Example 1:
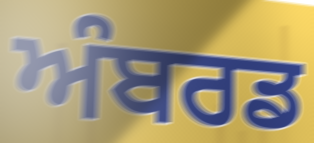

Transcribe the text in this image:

ਅੰਬਰਡ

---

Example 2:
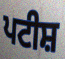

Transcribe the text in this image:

ਪਟੀਸ਼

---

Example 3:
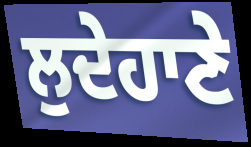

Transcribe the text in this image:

ਲੁਦੇਹਾਣੇ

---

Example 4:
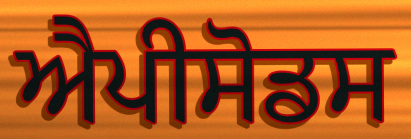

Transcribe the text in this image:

ਐਪੀਸੋਡਸ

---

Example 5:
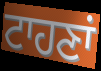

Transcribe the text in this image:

ਟਾਹਣਾਂ